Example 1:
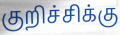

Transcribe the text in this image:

குறிச்சிக்கு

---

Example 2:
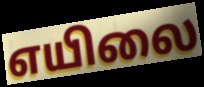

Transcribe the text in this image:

எயிலை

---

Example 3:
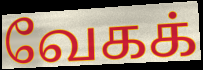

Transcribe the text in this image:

வேகக்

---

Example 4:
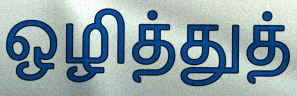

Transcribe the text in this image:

ஒழித்துத்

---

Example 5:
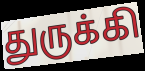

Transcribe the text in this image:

துருக்கி